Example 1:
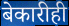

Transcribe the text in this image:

बेकारीही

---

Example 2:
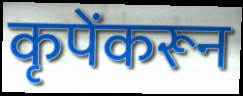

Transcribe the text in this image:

कृपेंकरून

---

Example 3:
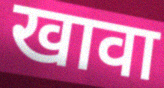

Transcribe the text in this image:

खावा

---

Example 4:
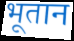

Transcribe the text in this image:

भूतान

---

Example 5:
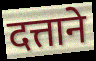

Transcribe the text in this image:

दत्ताने